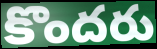
కొందరు